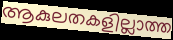
ആകുലതകളില്ലാത്ത